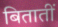
बितातीं